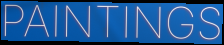
PAINTINGS